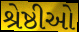
શ્રેષ્ઠીઓ